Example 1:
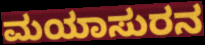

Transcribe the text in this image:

ಮಯಾಸುರನ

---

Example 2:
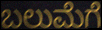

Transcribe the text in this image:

ಬಲುಮೆಗೆ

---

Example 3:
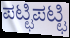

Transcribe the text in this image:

ಪಟ್ಟಿಪಟ್ಟಿ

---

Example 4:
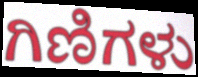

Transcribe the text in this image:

ಗಿಣಿಗಳು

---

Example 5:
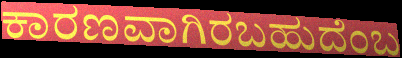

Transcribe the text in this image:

ಕಾರಣವಾಗಿರಬಹುದೆಂಬ